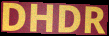
DHDR